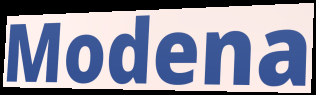
Modena